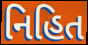
નિહિત